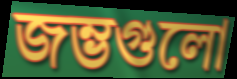
জম্ভগুলো